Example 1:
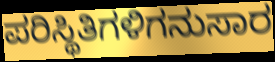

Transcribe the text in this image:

ಪರಿಸ್ಥಿತಿಗಳಿಗನುಸಾರ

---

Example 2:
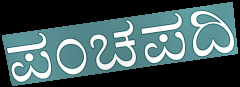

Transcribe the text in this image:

ಪಂಚಪದಿ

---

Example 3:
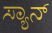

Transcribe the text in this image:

ಸ್ಯಾನ್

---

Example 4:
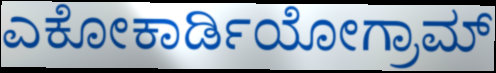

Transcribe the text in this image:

ಎಕೋಕಾರ್ಡಿಯೋಗ್ರಾಮ್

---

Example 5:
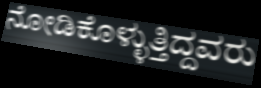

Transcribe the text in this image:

ನೋಡಿಕೊಳ್ಳುತ್ತಿದ್ದವರು